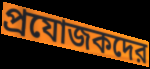
প্রযোজকদের